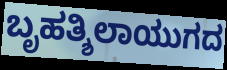
ಬೃಹತ್ಶಿಲಾಯುಗದ